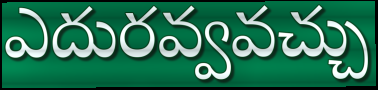
ఎదురవ్వవచ్చు